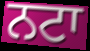
ਨਟਾ